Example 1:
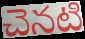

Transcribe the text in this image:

చెనటి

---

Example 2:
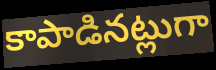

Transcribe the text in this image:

కాపాడినట్లుగా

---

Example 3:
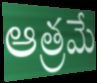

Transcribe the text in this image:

ఆత్రమే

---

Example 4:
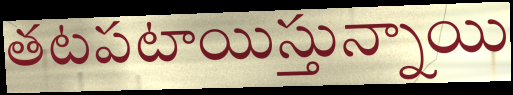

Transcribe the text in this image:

తటపటాయిస్తున్నాయి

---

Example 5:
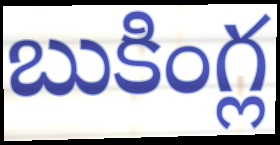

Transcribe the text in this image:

బుకింగ్ల